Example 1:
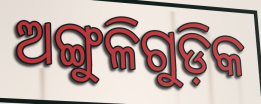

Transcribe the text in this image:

ଅଙ୍ଗୁଳିଗୁଡ଼ିକ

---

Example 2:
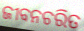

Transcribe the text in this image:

ଜୀବନଚରିତ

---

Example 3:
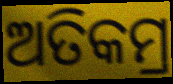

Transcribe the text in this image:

ଅତିକମ୍ର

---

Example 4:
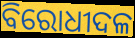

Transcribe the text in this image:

ବିରୋଧୀଦଳ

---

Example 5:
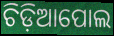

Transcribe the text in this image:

ଚିଡ଼ିଆପୋଲ